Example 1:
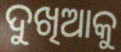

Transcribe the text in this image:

ଦୁଖିଆକୁ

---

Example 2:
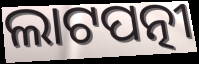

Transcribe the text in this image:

ଲାଟପତ୍ନୀ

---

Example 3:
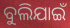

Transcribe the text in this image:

ବୁଲିଯାଇଁ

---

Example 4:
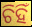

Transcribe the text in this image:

ଚିହିଁ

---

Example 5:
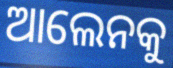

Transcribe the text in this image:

ଆଲେନକୁ